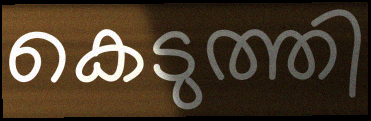
കെടുത്തി